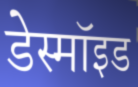
डेस्मॉइड